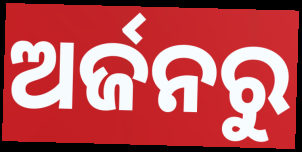
ଅର୍ଜନରୁ